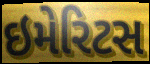
ઇમેરિટસ